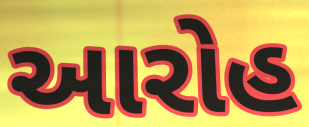
આરોહ